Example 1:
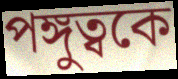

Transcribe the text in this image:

পঙ্গুত্বকে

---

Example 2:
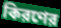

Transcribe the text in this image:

কিরণের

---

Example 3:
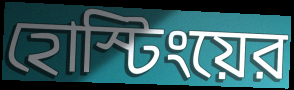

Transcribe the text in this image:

হোস্টিংয়ের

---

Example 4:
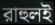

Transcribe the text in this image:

রাহুলই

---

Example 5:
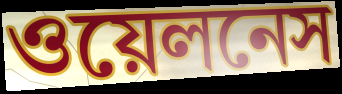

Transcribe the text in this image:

ওয়েলনেস